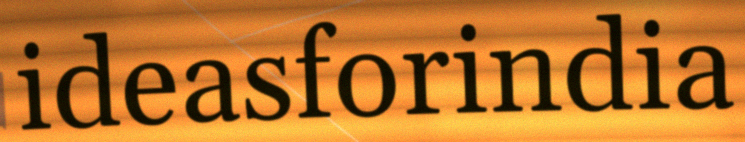
ideasforindia